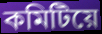
কমিটিয়ে